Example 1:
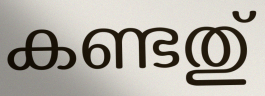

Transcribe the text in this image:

കണ്ടതു്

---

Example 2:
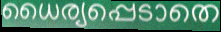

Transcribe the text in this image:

ധൈര്യപ്പെടാതെ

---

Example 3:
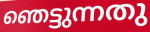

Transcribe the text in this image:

ഞെട്ടുന്നതു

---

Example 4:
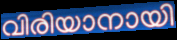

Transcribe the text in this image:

വിരിയാനായി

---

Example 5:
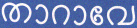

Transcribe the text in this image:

താറാവേ